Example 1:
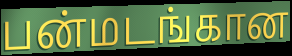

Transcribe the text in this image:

பன்மடங்கான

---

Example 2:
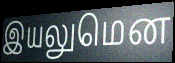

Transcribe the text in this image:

இயலுமென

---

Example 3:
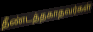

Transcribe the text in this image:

தீண்டத்தகாதவர்கள்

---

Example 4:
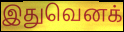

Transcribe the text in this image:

இதுவெனக்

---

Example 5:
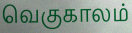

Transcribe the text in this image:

வெகுகாலம்